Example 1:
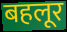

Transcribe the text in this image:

बहलूर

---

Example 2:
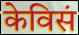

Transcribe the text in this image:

केविसं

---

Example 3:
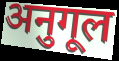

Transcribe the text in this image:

अनुगूल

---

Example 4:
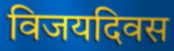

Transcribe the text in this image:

विजयदिवस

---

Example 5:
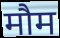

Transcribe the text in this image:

मौम